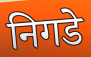
निगडे